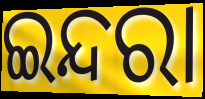
ଇନ୍ଦରା